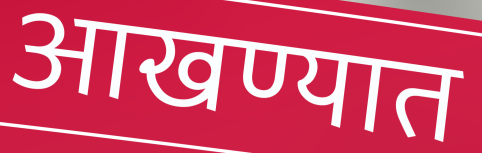
आखण्यात